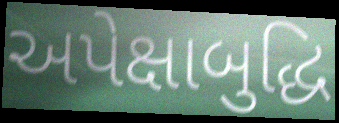
અપેક્ષાબુદ્ધિ